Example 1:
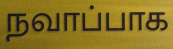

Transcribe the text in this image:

நவாப்பாக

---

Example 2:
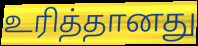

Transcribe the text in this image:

உரித்தானது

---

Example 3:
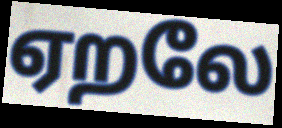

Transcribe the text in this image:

ஏறலே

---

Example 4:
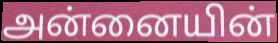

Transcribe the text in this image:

அன்னையின்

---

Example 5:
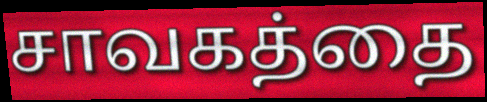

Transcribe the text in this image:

சாவகத்தை